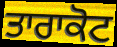
ਤਾਰਾਕੋਟ